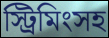
স্ট্রিমিংসহ